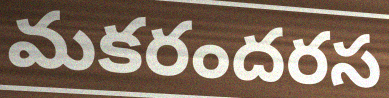
మకరందరస